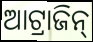
ଆଟ୍ରାଜିନ୍